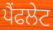
ਪੈਂਫਲੇਟ